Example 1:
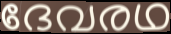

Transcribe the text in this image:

ദേവരഥ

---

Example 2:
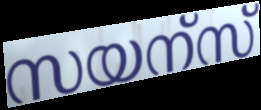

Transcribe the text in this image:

സയന്സ്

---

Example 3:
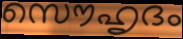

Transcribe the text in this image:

സൌഹൃദം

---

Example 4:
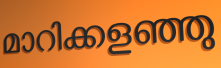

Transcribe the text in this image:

മാറിക്കളഞ്ഞു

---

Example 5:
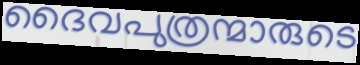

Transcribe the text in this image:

ദൈവപുത്രന്മാരുടെ